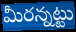
మీరన్నట్టు